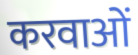
करवाओं